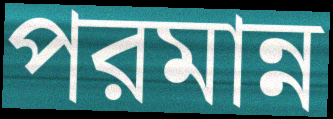
পরমান্ন